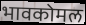
भावकोमल